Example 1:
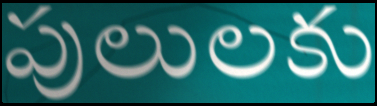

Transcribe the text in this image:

పులులకు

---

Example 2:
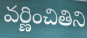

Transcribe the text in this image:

వర్ణించితిని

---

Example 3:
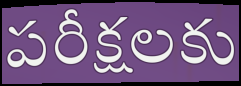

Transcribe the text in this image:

పరీక్షలకు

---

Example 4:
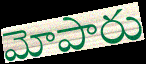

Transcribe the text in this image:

మోపారు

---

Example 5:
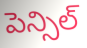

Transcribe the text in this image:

పెన్సిల్